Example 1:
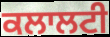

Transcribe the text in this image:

ਕਲਾਲਟੀ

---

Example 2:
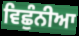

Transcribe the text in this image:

ਵਿਛੁੰਨੀਆ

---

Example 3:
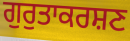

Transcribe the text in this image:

ਗੁਰੁਤਾਕਰਸ਼ਣ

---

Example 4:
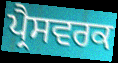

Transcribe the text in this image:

ਪ੍ਰੈਸਵਰਕ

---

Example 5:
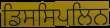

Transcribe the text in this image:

ਡਿਸਸਿਪਲਿਨ